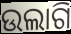
ଉଲାଗି